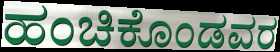
ಹಂಚಿಕೊಂಡವರ